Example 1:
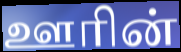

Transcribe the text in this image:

ஊரின்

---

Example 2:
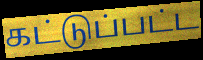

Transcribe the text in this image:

கட்டுப்பட்ட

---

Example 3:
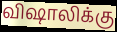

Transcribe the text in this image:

விஷாலிக்கு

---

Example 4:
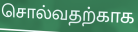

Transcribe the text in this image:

சொல்வதற்காக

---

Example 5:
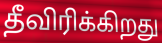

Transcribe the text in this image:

தீவிரிக்கிறது